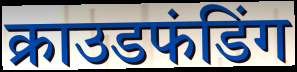
क्राउडफंडिंग